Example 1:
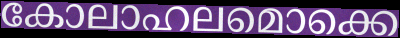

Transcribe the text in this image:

കോലാഹലമൊക്കെ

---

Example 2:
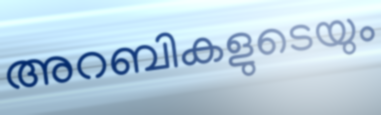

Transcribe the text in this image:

അറബികളുടെയും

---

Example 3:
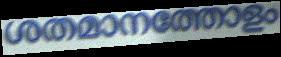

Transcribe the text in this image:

ശതമാനത്തോളം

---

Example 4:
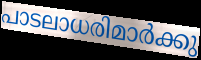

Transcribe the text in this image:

പാടലാധരിമാർക്കു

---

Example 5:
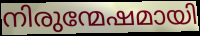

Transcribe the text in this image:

നിരുന്മേഷമായി